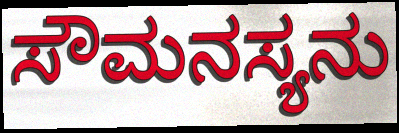
ಸೌಮನಸ್ಯನು